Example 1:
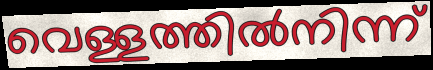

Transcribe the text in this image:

വെള്ളത്തിൽനിന്ന്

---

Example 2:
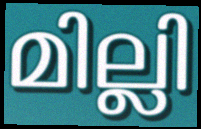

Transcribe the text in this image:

മില്ലി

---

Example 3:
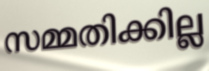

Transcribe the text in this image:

സമ്മതിക്കില്ല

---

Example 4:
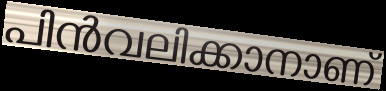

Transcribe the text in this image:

പിൻവലിക്കാനാണ്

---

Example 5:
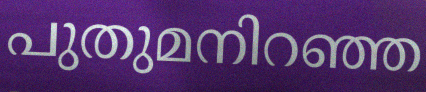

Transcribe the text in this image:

പുതുമനിറഞ്ഞ